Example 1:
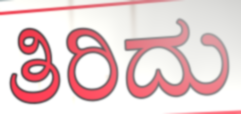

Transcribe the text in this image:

ತಿರಿದು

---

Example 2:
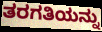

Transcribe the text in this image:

ತರಗತಿಯನ್ನು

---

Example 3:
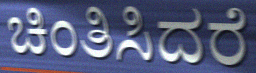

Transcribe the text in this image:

ಚಿಂತಿಸಿದರೆ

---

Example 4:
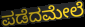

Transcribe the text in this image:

ಪಡೆದಮೇಲೆ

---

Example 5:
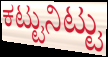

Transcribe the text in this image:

ಕಟ್ಟುನಿಟ್ಟು